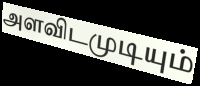
அளவிடமுடியும்